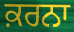
ਕ਼ਰਨਾ